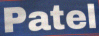
Patel